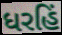
ધરહિં